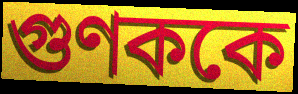
গুণককে